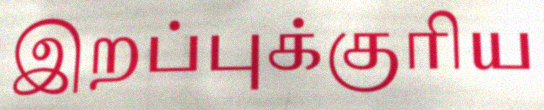
இறப்புக்குரிய